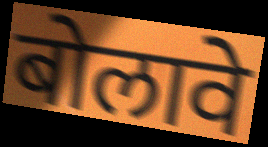
बोलावे